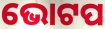
ଭୋଟପ